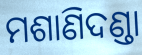
ମଶାଣିଦଣ୍ଡା